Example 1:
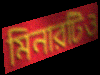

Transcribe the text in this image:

মিনারটিও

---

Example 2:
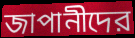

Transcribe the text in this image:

জাপানীদের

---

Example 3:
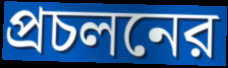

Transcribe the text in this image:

প্রচলনের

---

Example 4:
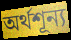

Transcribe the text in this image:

অর্থশূন্য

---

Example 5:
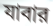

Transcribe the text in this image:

যাবার